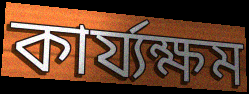
কাৰ্য্যক্ষম